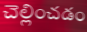
చెల్లించడం